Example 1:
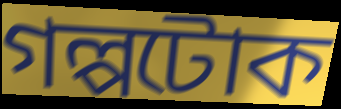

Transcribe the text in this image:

গল্পটোক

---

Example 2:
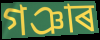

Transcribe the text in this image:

গঞাৰ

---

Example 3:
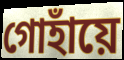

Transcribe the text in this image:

গোহাঁয়ে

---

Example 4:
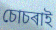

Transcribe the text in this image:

চোচৰাই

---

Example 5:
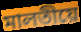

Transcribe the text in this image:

মালতীয়ে